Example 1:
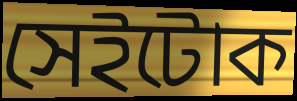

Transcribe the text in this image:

সেইটোক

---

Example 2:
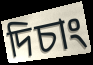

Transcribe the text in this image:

দিচাং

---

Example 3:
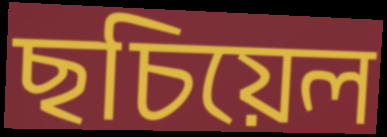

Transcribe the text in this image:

ছচিয়েল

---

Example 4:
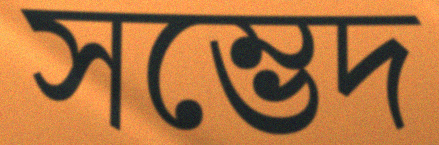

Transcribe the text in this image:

সম্ভেদ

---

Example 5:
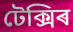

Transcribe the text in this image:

টেক্সিৰ